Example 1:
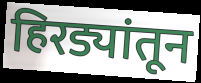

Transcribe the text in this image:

हिरड्यांतून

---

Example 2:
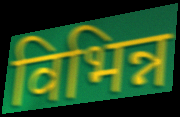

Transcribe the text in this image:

विभिन्न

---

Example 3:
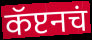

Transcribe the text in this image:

कॅप्टनचं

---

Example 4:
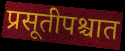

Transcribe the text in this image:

प्रसूतीपश्चात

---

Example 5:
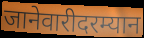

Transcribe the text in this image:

जानेवारीदरम्यान